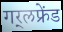
गर्लफ्रेंड